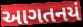
આગતનયં